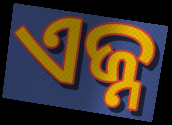
ଏଜ୍ନ